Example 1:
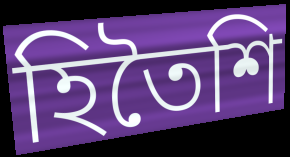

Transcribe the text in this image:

হিতৈশি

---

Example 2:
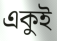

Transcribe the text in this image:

একুই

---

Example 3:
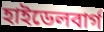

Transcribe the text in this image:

হাইডেলবার্গ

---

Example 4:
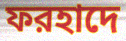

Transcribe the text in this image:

ফরহাদে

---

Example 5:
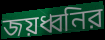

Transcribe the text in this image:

জয়ধ্বনির